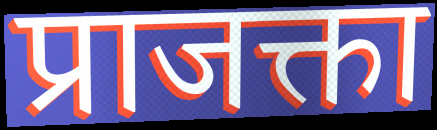
प्राजक्ता